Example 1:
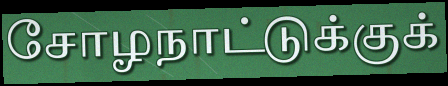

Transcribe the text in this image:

சோழநாட்டுக்குக்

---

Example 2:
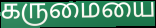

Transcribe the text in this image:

கருமையை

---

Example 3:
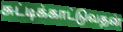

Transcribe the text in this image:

சுட்டிக்காட்டுவதன்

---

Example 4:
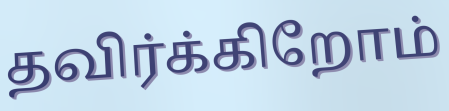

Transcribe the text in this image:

தவிர்க்கிறோம்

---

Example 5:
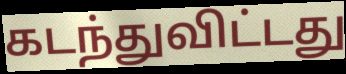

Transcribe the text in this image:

கடந்துவிட்டது